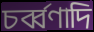
চর্ব্বণাদি